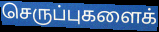
செருப்புகளைக்